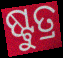
ଷ୍ଟୁତ୍ର